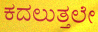
ಕದಲುತ್ತಲೇ